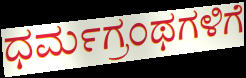
ಧರ್ಮಗ್ರಂಥಗಳಿಗೆ